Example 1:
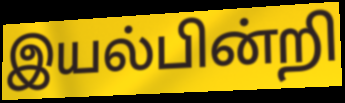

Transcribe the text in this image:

இயல்பின்றி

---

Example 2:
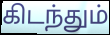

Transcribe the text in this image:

கிடந்தும்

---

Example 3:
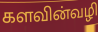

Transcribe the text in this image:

களவின்வழி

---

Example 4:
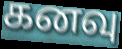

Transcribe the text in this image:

கனவு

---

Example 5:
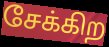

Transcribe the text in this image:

சேக்கிற